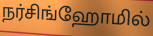
நர்சிங்ஹோமில்